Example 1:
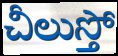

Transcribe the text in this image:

చీలుస్తో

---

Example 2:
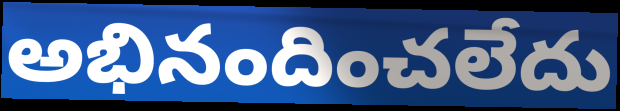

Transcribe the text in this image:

అభినందించలేదు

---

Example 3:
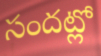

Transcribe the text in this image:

సందట్లో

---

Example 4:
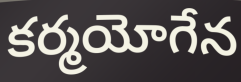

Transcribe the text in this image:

కర్మయోగేన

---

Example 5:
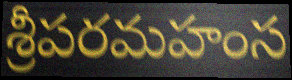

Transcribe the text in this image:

శ్రీపరమహంస